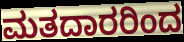
ಮತದಾರರಿಂದ